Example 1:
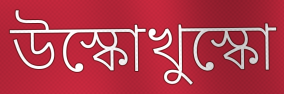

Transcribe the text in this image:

উস্কোখুস্কো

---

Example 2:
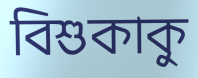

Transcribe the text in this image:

বিশুকাকু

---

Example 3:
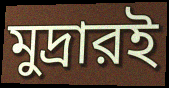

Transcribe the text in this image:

মুদ্রারই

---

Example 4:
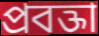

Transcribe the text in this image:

প্রবক্তা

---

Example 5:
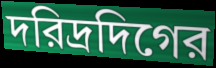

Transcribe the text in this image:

দরিদ্রদিগের